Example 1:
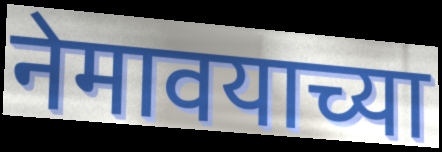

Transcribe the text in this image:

नेमावयाच्या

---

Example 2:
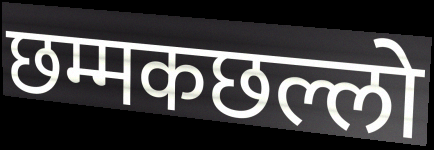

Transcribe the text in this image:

छम्मकछल्लो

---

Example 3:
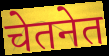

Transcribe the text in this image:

चेतनेत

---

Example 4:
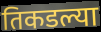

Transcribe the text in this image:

तिकडल्या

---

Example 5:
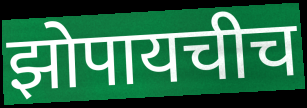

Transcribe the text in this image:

झोपायचीच